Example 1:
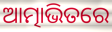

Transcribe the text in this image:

ଆତ୍ମାଭିତରେ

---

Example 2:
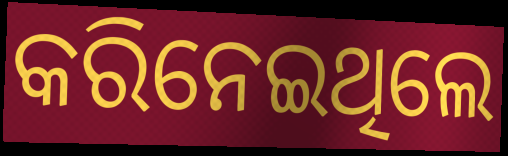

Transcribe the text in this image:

କରିନେଇଥିଲେ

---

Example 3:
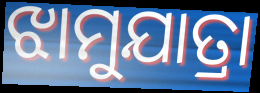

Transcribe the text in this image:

ଝାମୁଯାତ୍ରା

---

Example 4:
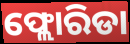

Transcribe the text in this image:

ଫ୍ଲୋରିଡା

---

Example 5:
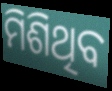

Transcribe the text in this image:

ମିଶିଥିବ